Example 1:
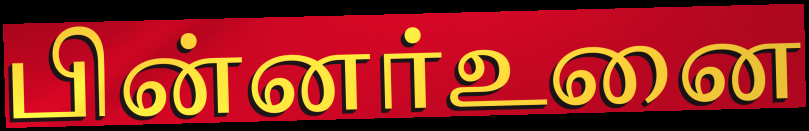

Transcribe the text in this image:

பின்னர்உனை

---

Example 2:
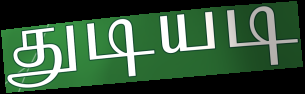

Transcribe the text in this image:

துடியடி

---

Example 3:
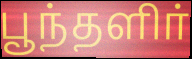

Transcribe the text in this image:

பூந்தளிர்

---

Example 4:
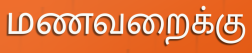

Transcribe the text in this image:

மணவறைக்கு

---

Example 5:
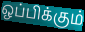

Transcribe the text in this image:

ஒப்பிக்கும்